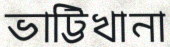
ভাট্টিখানা